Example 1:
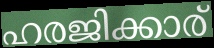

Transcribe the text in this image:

ഹരജിക്കാര്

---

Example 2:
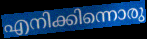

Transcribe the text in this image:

എനിക്കിന്നൊരു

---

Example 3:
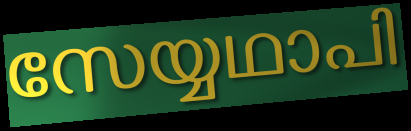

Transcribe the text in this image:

സേയ്യഥാപി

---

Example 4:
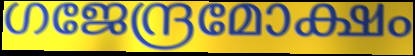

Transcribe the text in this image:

ഗജേന്ദ്രമോക്ഷം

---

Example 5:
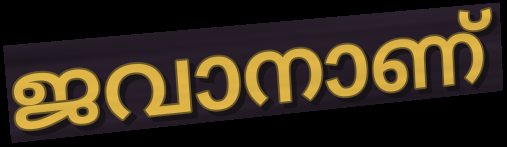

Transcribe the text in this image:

ജവാനാണ്